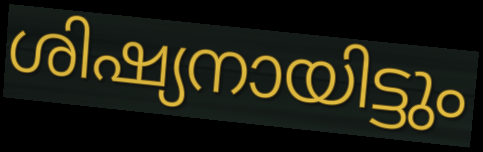
ശിഷ്യനായിട്ടും